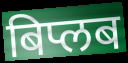
बिप्लब